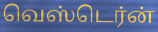
வெஸ்டெர்ன்